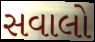
સવાલો